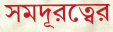
সমদূরত্বের